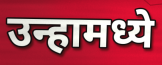
उन्हामध्ये